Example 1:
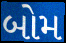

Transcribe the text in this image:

બોમ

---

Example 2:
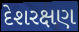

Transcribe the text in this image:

દેશરક્ષણ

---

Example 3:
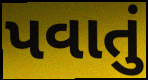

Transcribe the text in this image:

પવાતું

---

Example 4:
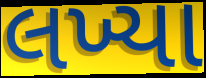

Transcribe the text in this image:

લખ્યા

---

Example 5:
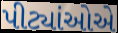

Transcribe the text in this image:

પીટ્યાંઓએ